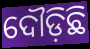
ଦୌଡ଼ିଛି